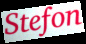
Stefon